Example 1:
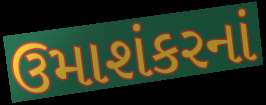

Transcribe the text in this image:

ઉમાશંકરનાં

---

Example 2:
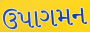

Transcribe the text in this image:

ઉપાગમન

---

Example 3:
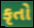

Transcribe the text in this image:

કૃતો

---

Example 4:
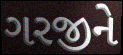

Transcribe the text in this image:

ગરજીને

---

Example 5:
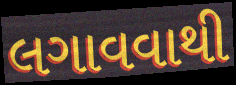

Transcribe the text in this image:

લગાવવાથી